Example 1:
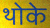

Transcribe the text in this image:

थोके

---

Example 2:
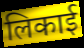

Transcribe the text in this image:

लिकाई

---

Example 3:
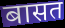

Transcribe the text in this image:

बासत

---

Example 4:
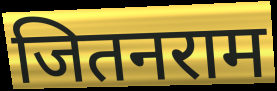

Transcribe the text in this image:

जितनराम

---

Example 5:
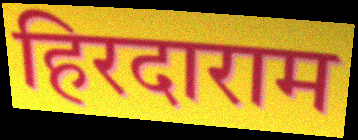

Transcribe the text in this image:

हिरदाराम